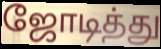
ஜோடித்து